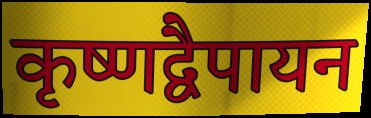
कृष्णद्वैपायन